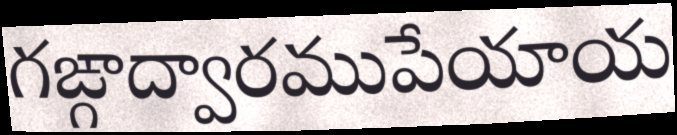
గఙ్గాద్వారముపేయాయ